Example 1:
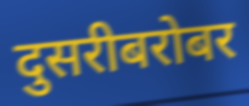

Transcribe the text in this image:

दुसरीबरोबर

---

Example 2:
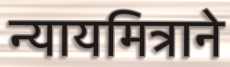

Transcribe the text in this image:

न्यायमित्राने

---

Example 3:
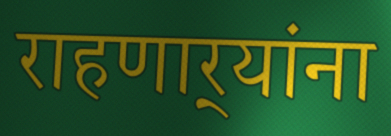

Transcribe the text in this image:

राहणार्यांना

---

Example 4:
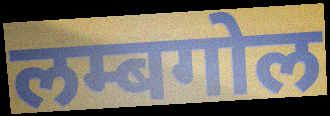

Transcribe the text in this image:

लम्बगोल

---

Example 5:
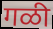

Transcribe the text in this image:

गळी